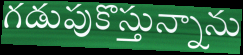
గడుపుకొస్తున్నాను